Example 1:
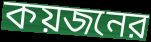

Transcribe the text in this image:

কয়জনের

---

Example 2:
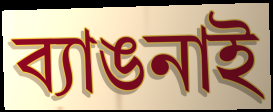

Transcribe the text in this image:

ব্যাঙনাই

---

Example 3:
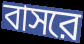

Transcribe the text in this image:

বাসরে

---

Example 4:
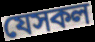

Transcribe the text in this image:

যেসকল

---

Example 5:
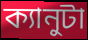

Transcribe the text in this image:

ক্যানুটা